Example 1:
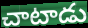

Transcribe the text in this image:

చాటాడు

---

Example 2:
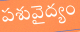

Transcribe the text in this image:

పశువైద్యం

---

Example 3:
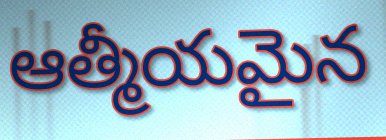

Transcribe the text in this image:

ఆత్మీయమైన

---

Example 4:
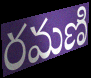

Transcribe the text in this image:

రమణి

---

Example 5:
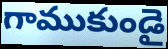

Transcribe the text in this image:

గాముకుండై